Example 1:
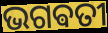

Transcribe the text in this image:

ଭଗଵତୀ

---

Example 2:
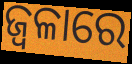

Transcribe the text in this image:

ଜ୍ୱଳାରେ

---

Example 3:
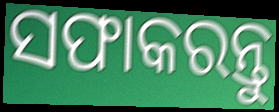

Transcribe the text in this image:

ସଫାକରନ୍ତୁ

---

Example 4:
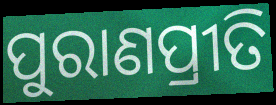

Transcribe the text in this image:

ପୁରାଣପ୍ରୀତି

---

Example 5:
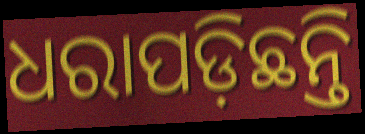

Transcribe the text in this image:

ଧରାପଡ଼ିଛନ୍ତି